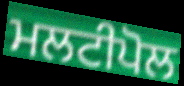
ਮਲਟੀਪੋਲ